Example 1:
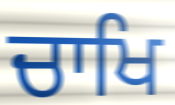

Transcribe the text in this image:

ਚਾਖਿ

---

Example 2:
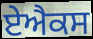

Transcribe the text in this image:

ਏਐਕਸ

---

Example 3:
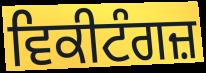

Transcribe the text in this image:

ਵਿਕੀਟੰਗਜ਼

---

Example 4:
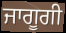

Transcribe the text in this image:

ਜਾਗੂਗੀ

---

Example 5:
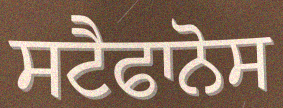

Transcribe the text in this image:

ਸਟੈਫਾਨੋਸ